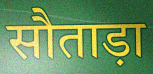
सौताड़ा